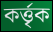
কর্ত্তৃক